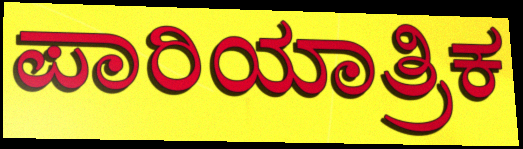
ಪಾರಿಯಾತ್ರಿಕ